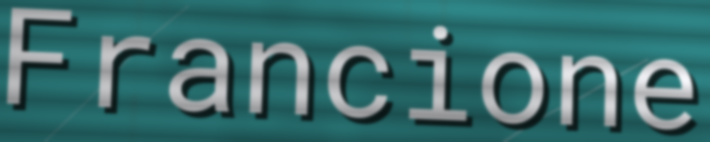
Francione